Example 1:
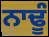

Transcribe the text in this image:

ਨਾਢੂੰ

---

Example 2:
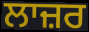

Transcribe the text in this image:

ਲਾਜ਼ਰ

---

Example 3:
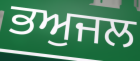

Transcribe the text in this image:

ਭਅੁਜਲ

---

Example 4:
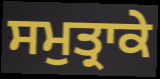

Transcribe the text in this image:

ਸਮੁਤ੍ਰਾਕੇ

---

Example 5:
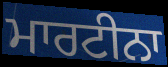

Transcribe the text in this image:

ਮਾਰਟੀਨਾ